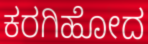
ಕರಗಿಹೋದ